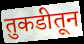
तुकडीतून